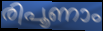
രിപൂണാം